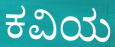
ಕವಿಯ